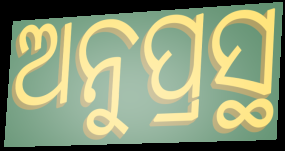
ଅନୁପ୍ରସ୍ଥ